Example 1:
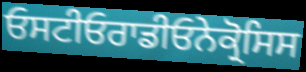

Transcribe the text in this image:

ਓਸਟੀਓਰਾਡੀਓਨੇਕ੍ਰੋਸਿਸ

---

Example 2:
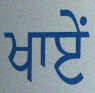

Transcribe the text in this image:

ਖਾਏਂ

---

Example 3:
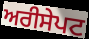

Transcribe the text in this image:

ਅਰੀਸੇਪਟ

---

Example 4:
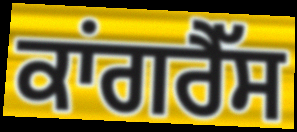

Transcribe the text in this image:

ਕਾਂਗਰੈੱਸ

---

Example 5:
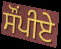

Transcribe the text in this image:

ਸੌਂਪੀਏ